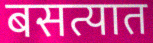
बसत्यात